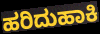
ಹರಿದುಹಾಕಿ